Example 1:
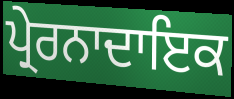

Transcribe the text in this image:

ਪ੍ਰੇਰਨਾਦਾਇਕ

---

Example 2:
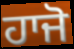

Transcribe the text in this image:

ਹਾਜੋ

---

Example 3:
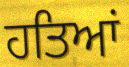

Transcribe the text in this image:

ਹਤਿਆਂ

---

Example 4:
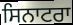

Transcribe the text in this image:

ਸਿਨਾਟਰਾ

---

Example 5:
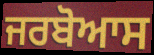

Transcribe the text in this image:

ਜਰਬੋਆਸ